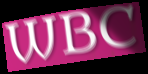
WBC